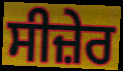
ਸੀਜ਼ੇਰ